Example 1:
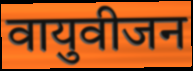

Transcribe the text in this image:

वायुवीजन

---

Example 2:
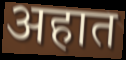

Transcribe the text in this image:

अहात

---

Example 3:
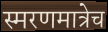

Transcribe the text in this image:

स्मरणमात्रेच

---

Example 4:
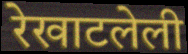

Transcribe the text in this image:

रेखाटलेली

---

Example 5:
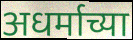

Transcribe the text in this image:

अधर्माच्या